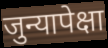
जुन्यापेक्षा